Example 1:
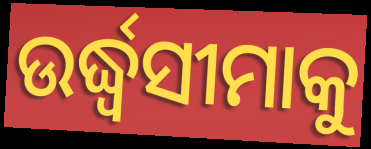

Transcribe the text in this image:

ଉର୍ଦ୍ଧ୍ୱସୀମାକୁ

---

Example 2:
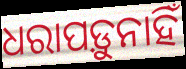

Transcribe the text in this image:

ଧରାପଡ଼ୁନାହିଁ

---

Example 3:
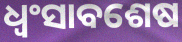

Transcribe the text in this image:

ଧ୍ଵଂସାବଶେଷ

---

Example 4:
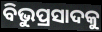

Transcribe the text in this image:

ବିଭୁପ୍ରସାଦକୁ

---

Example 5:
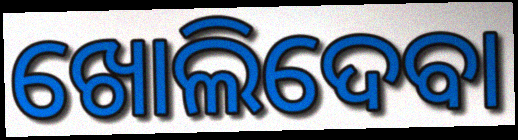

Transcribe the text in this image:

ଖୋଲିଦେବା